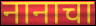
नानाचा